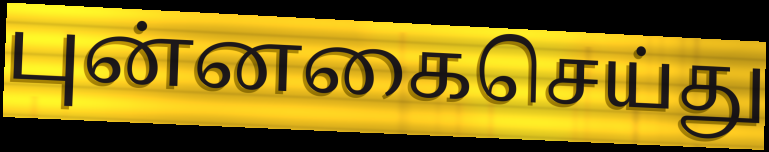
புன்னகைசெய்து